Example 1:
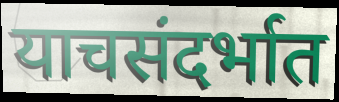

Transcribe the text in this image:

याचसंदर्भात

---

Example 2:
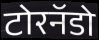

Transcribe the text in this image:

टोरनॅडो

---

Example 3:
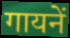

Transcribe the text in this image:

गायनें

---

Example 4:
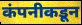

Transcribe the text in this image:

कंपनीकडून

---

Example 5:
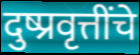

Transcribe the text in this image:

दुष्प्रवृत्तींचे